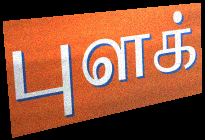
புளக்